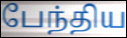
பேந்திய